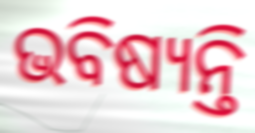
ଭବିଷ୍ୟନ୍ତି